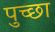
पुच्छा